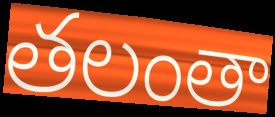
తలంతా